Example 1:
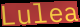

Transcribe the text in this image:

Lulea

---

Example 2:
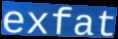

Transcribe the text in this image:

exfat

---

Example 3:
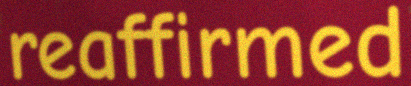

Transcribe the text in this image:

reaffirmed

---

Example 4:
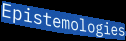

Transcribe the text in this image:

Epistemologies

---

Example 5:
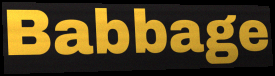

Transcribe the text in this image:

Babbage